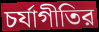
চর্যাগীতির